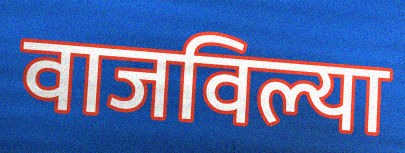
वाजविल्या